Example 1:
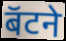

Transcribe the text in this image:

बॅटने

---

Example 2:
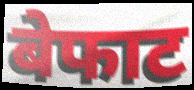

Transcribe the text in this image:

बेफाट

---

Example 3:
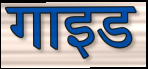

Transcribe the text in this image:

गाइड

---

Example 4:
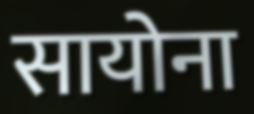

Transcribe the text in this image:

सायोना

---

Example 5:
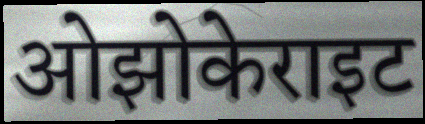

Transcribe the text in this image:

ओझोकेराइट